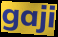
gaji